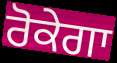
ਰੋਕੇਗਾ